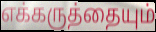
எக்கருத்தையும்